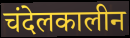
चंदेलकालीन